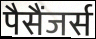
पैसैंजर्स